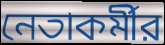
নেতাকর্মীর